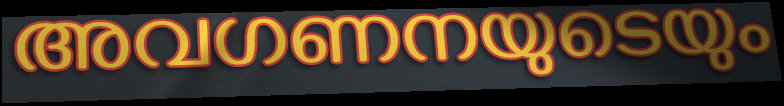
അവഗണനയുടെയും